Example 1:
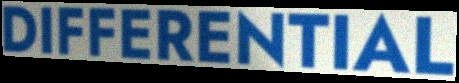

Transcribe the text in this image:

DIFFERENTIAL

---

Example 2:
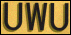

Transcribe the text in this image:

UWU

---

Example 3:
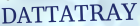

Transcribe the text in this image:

DATTATRAY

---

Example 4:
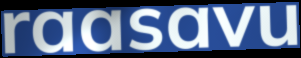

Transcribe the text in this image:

raasavu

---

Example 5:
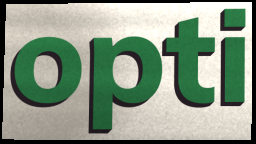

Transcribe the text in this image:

opti